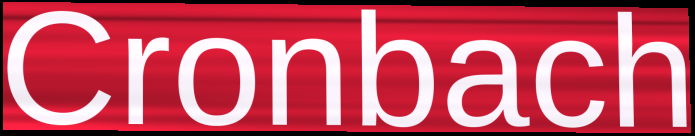
Cronbach